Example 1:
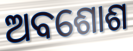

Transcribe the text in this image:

ଅବଶୋଶ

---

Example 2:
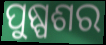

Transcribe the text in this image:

ପୁଷ୍ପଶର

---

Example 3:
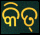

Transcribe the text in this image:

କିତ୍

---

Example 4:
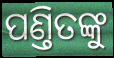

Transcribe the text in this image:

ପଣ୍ତିତଙ୍କୁ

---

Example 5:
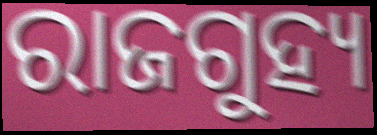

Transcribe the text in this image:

ରାଜଗୁହ୍ୟ